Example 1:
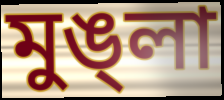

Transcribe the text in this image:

মুঙ্লা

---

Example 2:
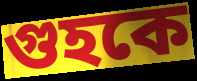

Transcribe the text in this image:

গুহকে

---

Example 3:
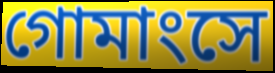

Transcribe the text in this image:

গোমাংসে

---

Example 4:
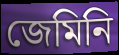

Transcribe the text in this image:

জেমিনি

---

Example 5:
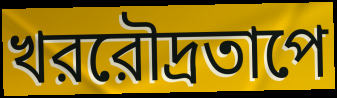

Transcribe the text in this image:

খররৌদ্রতাপে